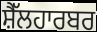
ਸ਼ੈੱਲਹਾਰਬਰ